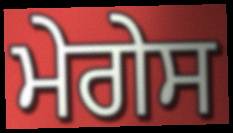
ਮੇਗੇਸ